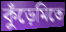
কুঁড়েমিতে